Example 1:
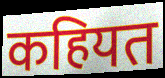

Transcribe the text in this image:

कहियत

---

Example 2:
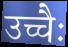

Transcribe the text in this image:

उच्चैः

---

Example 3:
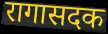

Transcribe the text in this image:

रागासदक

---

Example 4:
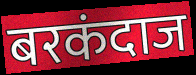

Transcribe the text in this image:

बरकंदाज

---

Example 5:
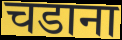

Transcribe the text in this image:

चडाना